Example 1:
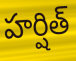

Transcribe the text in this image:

హర్షిత్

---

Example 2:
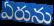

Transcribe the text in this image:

ఏరును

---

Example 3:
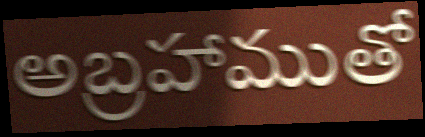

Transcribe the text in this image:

అబ్రహాముతో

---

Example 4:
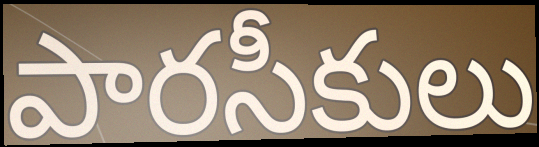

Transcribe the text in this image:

పారసీకులు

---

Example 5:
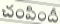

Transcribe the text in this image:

చంపిందీ